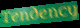
Tendency